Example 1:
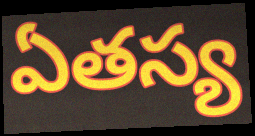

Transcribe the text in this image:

ఏతస్య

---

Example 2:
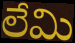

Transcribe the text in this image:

లేమి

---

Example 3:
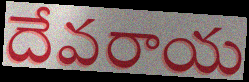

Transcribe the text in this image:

దేవరాయ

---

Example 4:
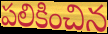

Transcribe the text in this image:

పలికించిన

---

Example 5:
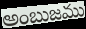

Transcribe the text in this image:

అంబుజము